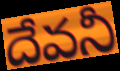
దేవనీ